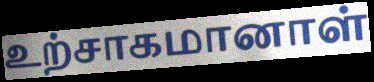
உற்சாகமானாள்